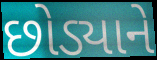
છોડ્યાને